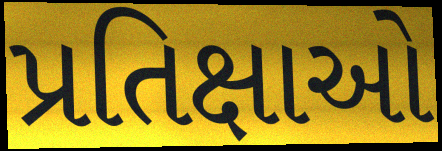
પ્રતિક્ષાઓ